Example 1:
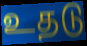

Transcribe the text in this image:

உதடு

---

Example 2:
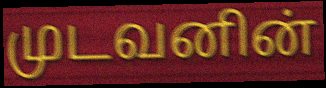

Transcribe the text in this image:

முடவனின்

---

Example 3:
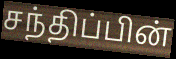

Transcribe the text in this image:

சந்திப்பின்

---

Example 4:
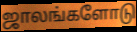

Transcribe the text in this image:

ஜாலங்களோடு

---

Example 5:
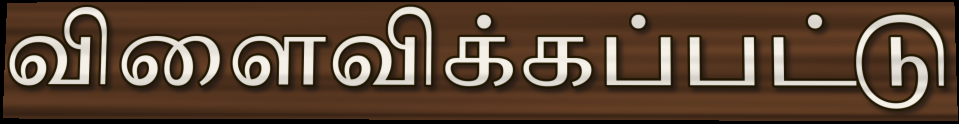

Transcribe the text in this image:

விளைவிக்கப்பட்டு